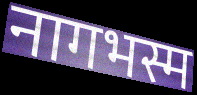
नागभस्म